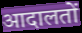
आदालतों